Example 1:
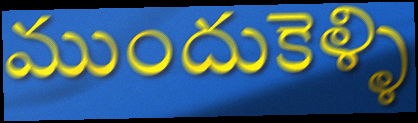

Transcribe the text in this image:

ముందుకెళ్ళి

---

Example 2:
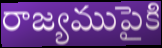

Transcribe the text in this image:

రాజ్యముపైకి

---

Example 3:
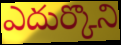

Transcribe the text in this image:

ఎదుర్కొని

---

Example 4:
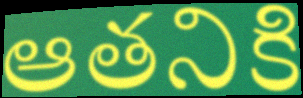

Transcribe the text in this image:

ఆతనికి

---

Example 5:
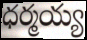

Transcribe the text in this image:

ధర్మయ్య